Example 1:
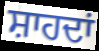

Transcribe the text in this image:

ਸ਼ਾਹਦਾਂ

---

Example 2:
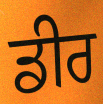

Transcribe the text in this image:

ਡੀਰ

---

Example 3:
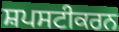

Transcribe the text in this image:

ਸ਼ਪਸਟੀਕਰਨ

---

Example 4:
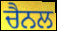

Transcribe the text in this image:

ਚੈਨਲ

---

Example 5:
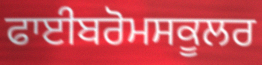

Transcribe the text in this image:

ਫਾਈਬਰੋਮਸਕੂਲਰ